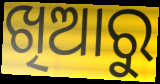
ଖିଆରୁ